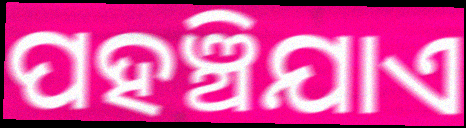
ପହଞ୍ଚିଯାଏ